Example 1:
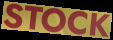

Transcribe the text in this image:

STOCK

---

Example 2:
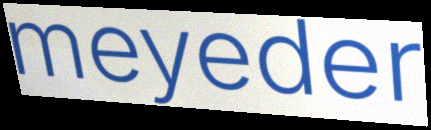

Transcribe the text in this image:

meyeder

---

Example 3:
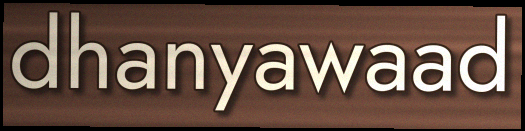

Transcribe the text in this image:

dhanyawaad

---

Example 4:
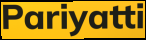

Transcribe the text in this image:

Pariyatti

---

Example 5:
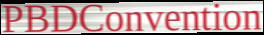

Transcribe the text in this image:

PBDConvention